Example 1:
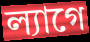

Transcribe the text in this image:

ল্যাগে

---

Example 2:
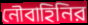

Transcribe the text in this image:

নৌবাহিনির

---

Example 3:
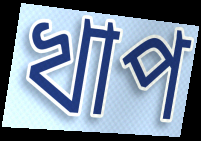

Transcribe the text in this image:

খাপ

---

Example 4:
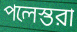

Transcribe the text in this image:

পলেস্তরা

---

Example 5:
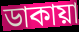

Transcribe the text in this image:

ডাকায়া